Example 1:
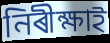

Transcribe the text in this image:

নিৰীক্ষাই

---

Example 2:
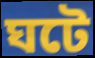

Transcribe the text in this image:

ঘটে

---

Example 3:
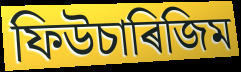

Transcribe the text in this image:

ফিউচাৰিজিম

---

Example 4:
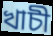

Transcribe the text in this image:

খাচী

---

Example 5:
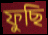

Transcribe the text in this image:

ফুছি